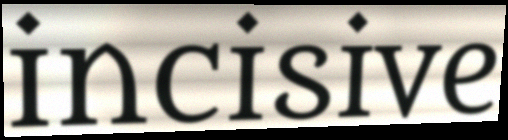
incisive